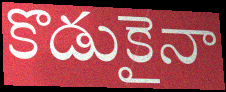
కొడుకైనా